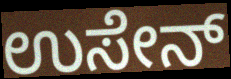
ಉಸೇನ್